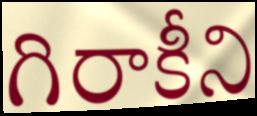
గిరాకీని